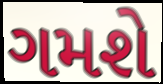
ગમશે